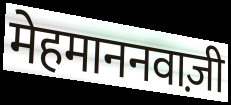
मेहमाननवाज़ी